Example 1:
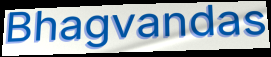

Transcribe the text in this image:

Bhagvandas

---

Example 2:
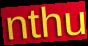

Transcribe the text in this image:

nthu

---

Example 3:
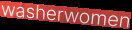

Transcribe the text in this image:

washerwomen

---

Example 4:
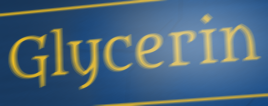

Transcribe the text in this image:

Glycerin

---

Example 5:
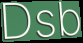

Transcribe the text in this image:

Dsb